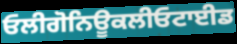
ਓਲੀਗੋਨਿਊਕਲੀਓਟਾਈਡ